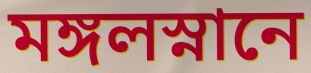
মঙ্গলস্নানে